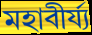
মহাবীর্য্য